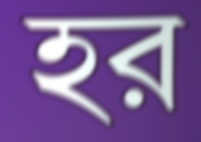
হর